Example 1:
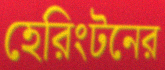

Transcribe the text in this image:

হেরিংটনের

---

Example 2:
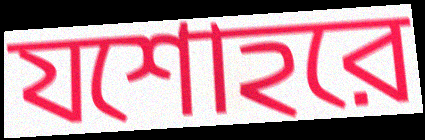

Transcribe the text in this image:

যশোহরে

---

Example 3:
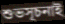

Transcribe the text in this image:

শুভসূচনাই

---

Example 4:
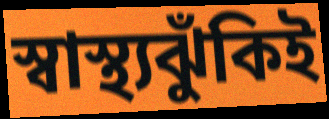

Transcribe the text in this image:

স্বাস্থ্যঝুঁকিই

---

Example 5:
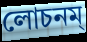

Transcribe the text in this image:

লোচনম্